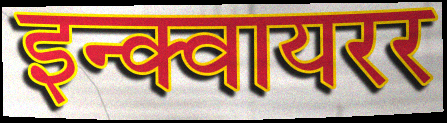
इन्क्वायरर